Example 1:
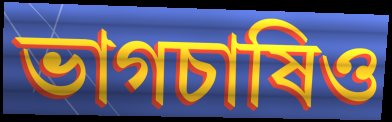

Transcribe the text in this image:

ভাগচাষিও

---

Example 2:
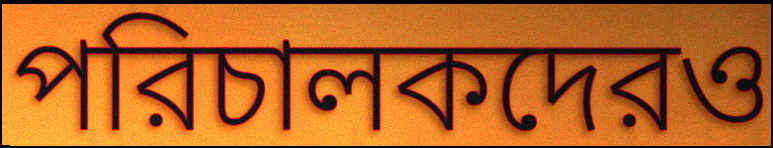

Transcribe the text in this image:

পরিচালকদেরও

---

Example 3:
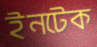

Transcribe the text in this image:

ইনটেক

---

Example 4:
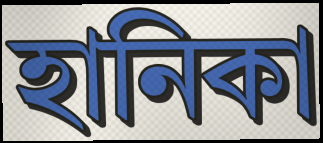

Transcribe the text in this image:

হানিকা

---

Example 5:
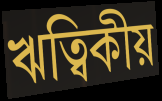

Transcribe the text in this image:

ঋত্বিকীয়